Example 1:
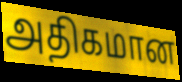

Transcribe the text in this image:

அதிகமான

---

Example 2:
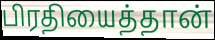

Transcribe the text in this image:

பிரதியைத்தான்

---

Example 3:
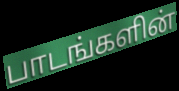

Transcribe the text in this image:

பாடங்களின்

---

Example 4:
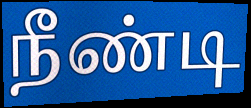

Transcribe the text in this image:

நீண்டி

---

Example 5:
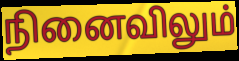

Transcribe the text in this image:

நினைவிலும்